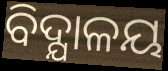
ବିଦ୍ଯାଳୟ